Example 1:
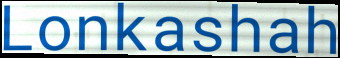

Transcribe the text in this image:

Lonkashah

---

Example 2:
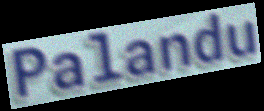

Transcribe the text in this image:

Palandu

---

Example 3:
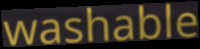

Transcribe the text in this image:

washable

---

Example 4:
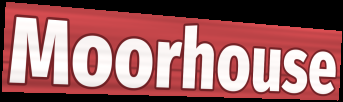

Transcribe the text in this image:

Moorhouse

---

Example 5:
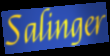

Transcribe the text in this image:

Salinger